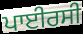
ਪਾਈਰਸੀ